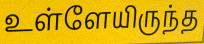
உள்ளேயிருந்த